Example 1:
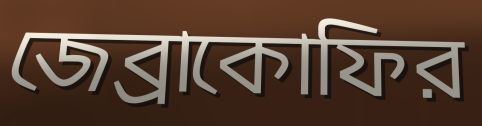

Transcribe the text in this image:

জেব্রাকোফির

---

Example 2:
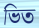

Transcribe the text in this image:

ভিত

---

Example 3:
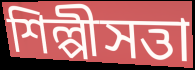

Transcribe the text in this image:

শিল্পীসত্তা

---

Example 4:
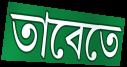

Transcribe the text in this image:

তাবেতে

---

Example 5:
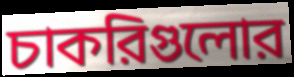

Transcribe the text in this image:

চাকরিগুলোর